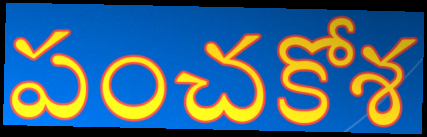
పంచకోశ